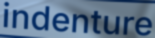
indenture